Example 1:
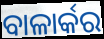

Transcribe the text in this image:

ବାଳାର୍କର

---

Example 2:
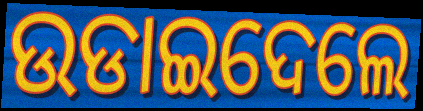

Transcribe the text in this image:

ଉଡାଇଦେଲେ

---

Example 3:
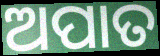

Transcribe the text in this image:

ଅପାତ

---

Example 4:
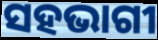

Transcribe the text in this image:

ସହଭାଗୀ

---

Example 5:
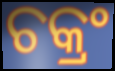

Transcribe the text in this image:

ଚକ୍ରଂ